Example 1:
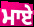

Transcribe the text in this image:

ਮਾਏ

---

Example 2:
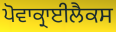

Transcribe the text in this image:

ਪੋਵਾਕ੍ਰਾਈਲੈਕਸ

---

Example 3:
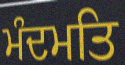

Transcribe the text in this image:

ਮੰਦਮਤਿ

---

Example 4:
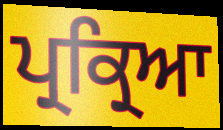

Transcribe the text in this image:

ਪ੍ਰਕ੍ਰਿਆ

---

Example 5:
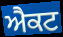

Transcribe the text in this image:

ਐਕਟ